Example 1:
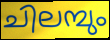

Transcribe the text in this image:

ചിലമ്പും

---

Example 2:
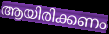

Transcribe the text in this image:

ആയിരിക്കണം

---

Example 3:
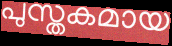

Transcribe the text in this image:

പുസ്തകമായ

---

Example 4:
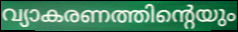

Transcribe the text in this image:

വ്യാകരണത്തിന്റെയും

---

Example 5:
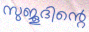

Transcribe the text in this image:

സുജൂദിന്റെ